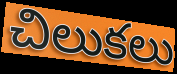
చిలుకలు